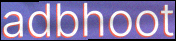
adbhoot